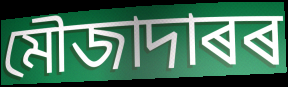
মৌজাদাৰৰ